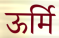
ऊर्मि